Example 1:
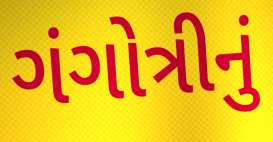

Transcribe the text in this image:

ગંગોત્રીનું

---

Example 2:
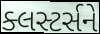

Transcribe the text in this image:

ક્લસ્ટર્સને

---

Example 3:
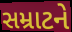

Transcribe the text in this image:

સમ્રાટને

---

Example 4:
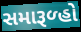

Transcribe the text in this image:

સમારૂળ્હો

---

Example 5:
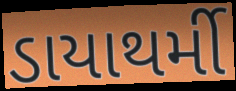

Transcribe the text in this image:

ડાયાથર્મી